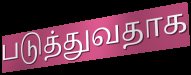
படுத்துவதாக